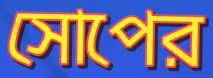
সোপের